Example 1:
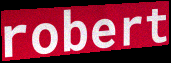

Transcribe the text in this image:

robert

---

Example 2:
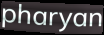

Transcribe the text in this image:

pharyan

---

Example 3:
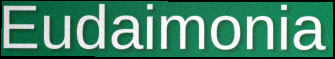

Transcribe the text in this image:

Eudaimonia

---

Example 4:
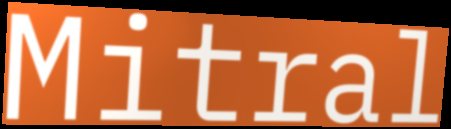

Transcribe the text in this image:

Mitral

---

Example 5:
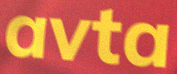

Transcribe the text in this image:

avta